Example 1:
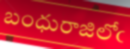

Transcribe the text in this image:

బంధురాజిలోఁ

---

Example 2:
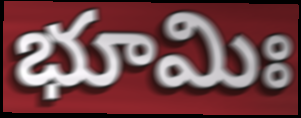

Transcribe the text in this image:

భూమిః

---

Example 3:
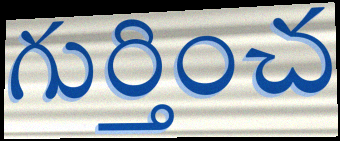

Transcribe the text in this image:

గుర్తించ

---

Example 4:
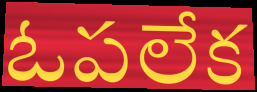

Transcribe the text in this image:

ఓపలేక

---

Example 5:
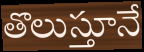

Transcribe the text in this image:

తొలుస్తూనే